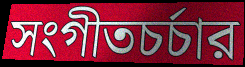
সংগীতচর্চার